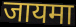
जायमा